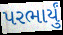
પરભાર્યું